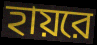
হায়রে